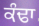
ਕੰਢਾ